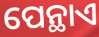
ପେନ୍ଥାଏ